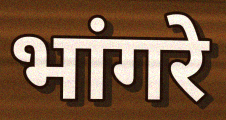
भांगरे